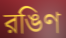
রঙিণ